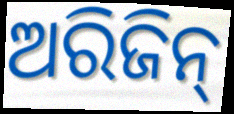
ଅରିଜିନ୍